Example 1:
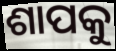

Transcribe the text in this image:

ଶାପକୁ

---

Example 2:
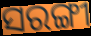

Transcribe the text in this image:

ସରଙ୍ଗୀ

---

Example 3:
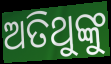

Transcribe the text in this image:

ଅତିଥୁଙ୍କୁ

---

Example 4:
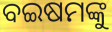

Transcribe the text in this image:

ବଇଷମଙ୍କୁ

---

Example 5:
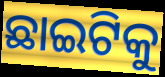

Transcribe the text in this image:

ଛାଇଟିକୁ